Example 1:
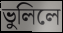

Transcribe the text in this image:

ভুলিলে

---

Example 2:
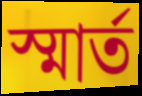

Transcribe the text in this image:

স্মার্ত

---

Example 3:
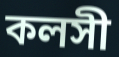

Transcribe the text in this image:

কলসী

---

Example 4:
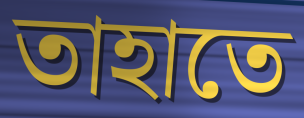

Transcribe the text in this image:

তাহাতে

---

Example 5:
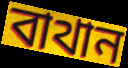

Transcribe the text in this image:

বাথান